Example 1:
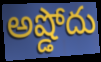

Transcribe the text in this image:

అష్డోదు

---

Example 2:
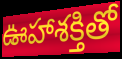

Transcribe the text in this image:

ఊహాశక్తితో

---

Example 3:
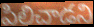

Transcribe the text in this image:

పిలిచాడని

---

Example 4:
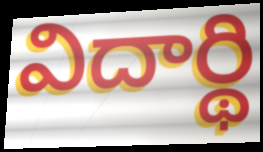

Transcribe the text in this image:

విదార్థి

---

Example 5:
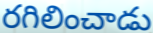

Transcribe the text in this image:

రగిలించాడు